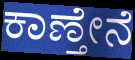
ಕಾಣ್ತೇನೆ